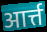
आर्त्त